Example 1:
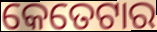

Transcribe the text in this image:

କେତେଟାର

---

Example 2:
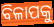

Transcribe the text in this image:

ବିଳାପକୁ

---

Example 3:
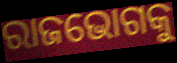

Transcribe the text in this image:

ରାଜଭୋଗକୁ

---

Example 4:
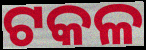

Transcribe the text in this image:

ଟକଳ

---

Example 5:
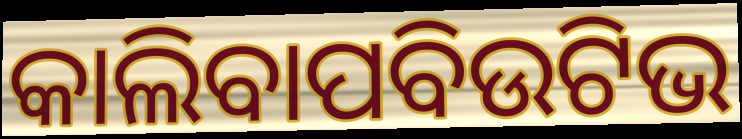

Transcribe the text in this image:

କାଲିବାପବିଉଟିଭ